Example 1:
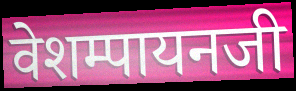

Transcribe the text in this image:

वेशम्पायनजी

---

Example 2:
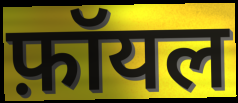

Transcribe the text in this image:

फ़ॉयल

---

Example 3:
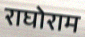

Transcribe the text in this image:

राघोराम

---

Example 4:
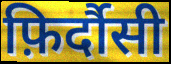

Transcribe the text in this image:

फ़िर्दौसी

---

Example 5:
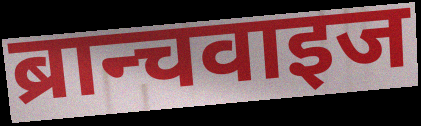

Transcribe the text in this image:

ब्रान्चवाइज